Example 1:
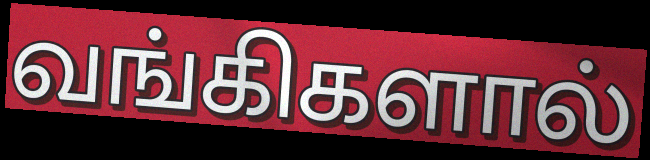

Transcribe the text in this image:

வங்கிகளால்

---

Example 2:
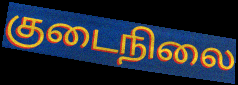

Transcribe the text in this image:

குடைநிலை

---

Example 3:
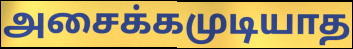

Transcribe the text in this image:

அசைக்கமுடியாத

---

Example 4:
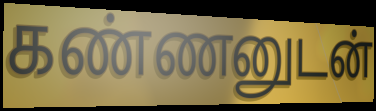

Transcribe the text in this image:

கண்ணனுடன்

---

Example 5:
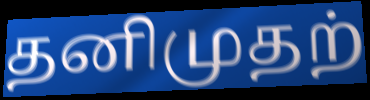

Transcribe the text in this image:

தனிமுதற்